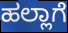
ಹಲ್ಲಾಗೆ